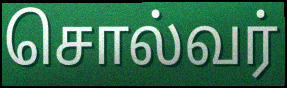
சொல்வர்